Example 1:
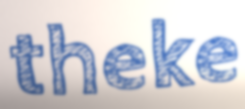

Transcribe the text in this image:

theke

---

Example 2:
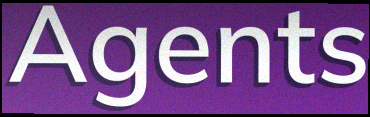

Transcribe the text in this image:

Agents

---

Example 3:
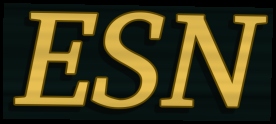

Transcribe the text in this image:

ESN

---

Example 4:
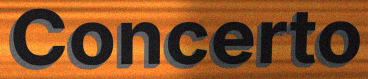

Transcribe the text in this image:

Concerto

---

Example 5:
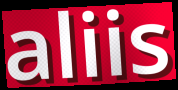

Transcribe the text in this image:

aliis